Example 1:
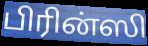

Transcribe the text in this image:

பிரின்ஸி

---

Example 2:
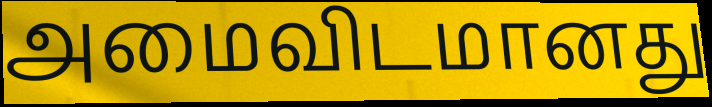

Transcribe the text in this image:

அமைவிடமானது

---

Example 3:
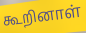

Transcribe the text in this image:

கூறினாள்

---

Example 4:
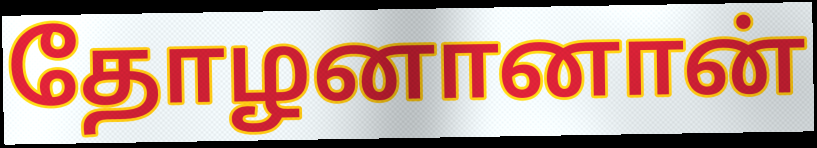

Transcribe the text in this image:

தோழனானான்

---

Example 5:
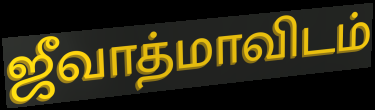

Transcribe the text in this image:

ஜீவாத்மாவிடம்